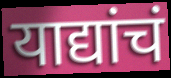
याद्यांचं